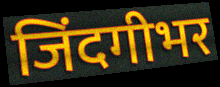
जिंदगीभर